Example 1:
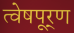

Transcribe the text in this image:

त्वेषपूर्ण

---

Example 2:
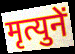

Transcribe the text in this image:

मृत्युनें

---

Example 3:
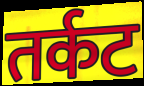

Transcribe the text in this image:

तर्कट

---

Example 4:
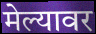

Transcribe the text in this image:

मेल्यावर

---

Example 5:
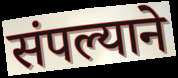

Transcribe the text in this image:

संपल्याने